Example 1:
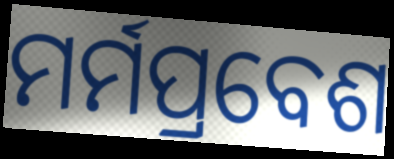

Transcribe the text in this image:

ମର୍ମପ୍ରବେଶ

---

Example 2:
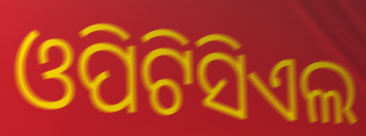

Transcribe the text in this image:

ଓପିଟିସିଏଲ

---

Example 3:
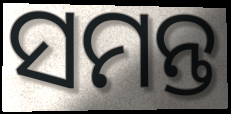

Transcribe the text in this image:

ସମନ୍ତ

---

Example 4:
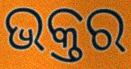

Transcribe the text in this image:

ଭକ୍ତର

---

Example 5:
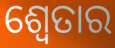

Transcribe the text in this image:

ଶ୍ଵେତାର